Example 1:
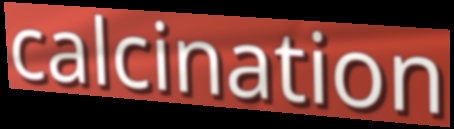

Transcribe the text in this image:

calcination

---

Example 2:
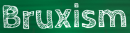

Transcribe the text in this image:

Bruxism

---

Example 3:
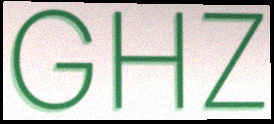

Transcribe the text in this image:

GHZ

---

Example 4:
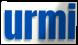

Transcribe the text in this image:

urmi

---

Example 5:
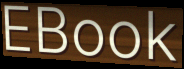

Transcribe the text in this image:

EBook